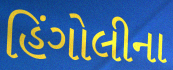
હિંગોલીના